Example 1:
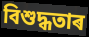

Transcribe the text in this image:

বিশুদ্ধতাৰ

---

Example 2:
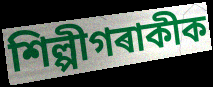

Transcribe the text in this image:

শিল্পীগৰাকীক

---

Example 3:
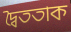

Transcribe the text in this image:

দ্বৈততাক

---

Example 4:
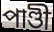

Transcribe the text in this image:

পাণ্ডী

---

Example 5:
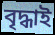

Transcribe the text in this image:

বৃদ্ধাই